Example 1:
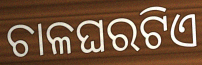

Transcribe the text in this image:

ଚାଳଘରଟିଏ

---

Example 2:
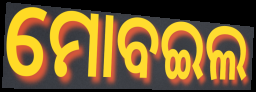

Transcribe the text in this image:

ମୋବଇଲ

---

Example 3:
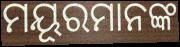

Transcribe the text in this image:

ମୟୂରମାନଙ୍କ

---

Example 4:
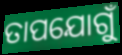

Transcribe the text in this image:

ତାପଯୋଗୁଁ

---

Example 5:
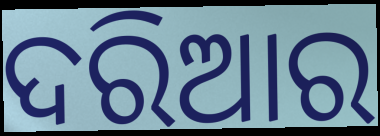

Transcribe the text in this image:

ଦରିଆର